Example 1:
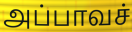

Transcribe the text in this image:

அப்பாவச்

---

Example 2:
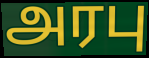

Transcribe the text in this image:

அரபு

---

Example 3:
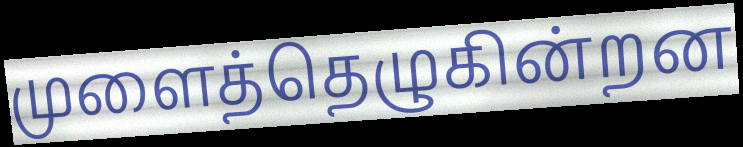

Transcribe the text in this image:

முளைத்தெழுகின்றன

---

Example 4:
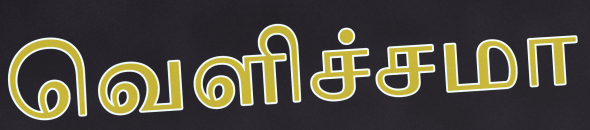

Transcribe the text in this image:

வெளிச்சமா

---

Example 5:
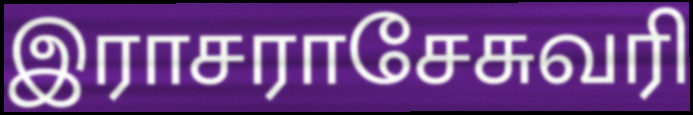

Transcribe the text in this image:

இராசராசேசுவரி